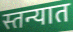
स्तन्यात